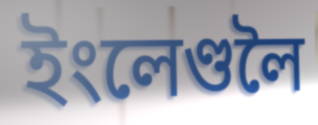
ইংলেণ্ডলৈ